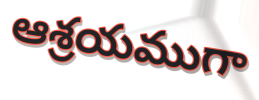
ఆశ్రయముగా